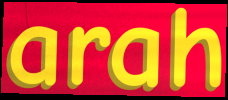
arah